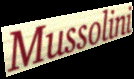
Mussolini